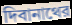
দিবানাথের